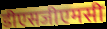
डीएसजीएमसी